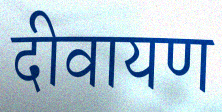
दीवायण